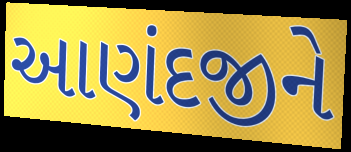
આણંદજીને